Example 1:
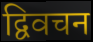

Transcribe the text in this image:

द्विवचन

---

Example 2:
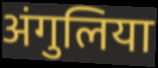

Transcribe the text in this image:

अंगुलिया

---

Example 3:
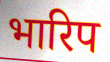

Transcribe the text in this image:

भारिप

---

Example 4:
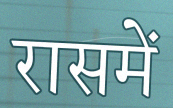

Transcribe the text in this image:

रासमें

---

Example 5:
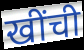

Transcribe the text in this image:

खींची